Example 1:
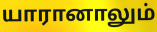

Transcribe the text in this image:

யாரானாலும்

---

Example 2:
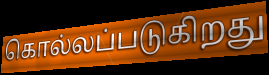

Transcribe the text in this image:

கொல்லப்படுகிறது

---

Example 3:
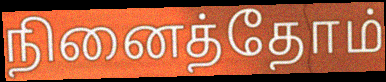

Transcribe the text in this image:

நினைத்தோம்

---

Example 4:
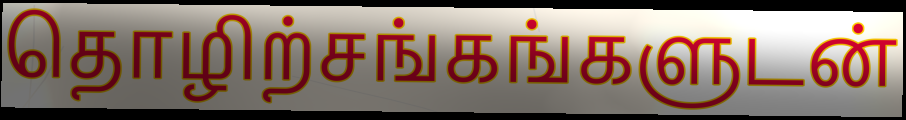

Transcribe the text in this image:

தொழிற்சங்கங்களுடன்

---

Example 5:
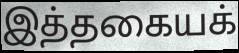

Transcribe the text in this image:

இத்தகையக்